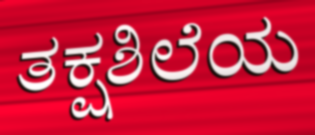
ತಕ್ಷಶಿಲೆಯ